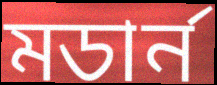
মডার্ন